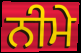
ਨੀਮੇ